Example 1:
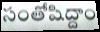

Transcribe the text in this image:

సంతోషిద్దాం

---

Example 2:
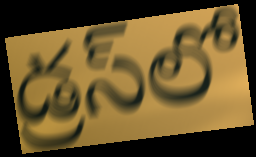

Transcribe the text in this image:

డ్రస్‌లో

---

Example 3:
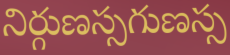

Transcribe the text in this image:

నిర్గుణస్సగుణస్స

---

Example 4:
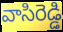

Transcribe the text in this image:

వాసిరెడ్డి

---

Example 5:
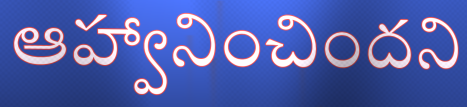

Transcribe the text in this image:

ఆహ్వానించిందని